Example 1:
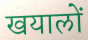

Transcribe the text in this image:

खयालों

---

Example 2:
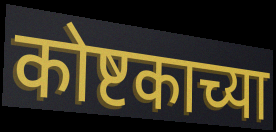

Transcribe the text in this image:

कोष्टकाच्या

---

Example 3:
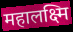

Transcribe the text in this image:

महालक्ष्मि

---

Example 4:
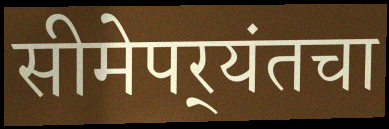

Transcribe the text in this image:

सीमेपर्यंतचा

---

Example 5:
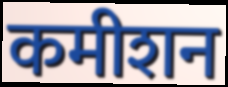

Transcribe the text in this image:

कमीशन